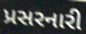
પ્રસરનારી